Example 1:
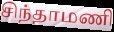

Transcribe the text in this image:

சிந்தாமணி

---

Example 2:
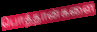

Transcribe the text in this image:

பொத்தான்களை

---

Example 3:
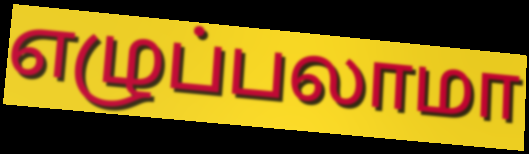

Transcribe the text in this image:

எழுப்பலாமா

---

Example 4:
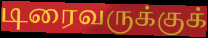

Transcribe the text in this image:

டிரைவருக்குக்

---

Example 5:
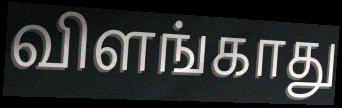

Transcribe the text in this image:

விளங்காது